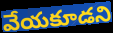
వేయకూడని